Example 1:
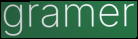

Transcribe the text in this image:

gramer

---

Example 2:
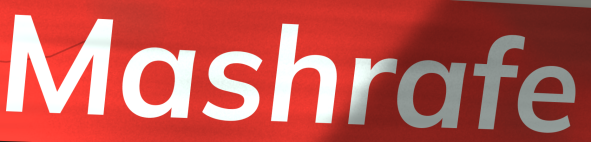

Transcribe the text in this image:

Mashrafe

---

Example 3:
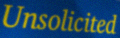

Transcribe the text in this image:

Unsolicited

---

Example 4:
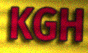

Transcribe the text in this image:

KGH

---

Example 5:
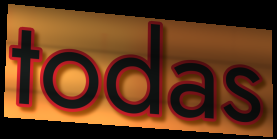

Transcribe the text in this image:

todas